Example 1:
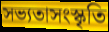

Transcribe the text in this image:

সভ্যতাসংস্কৃতি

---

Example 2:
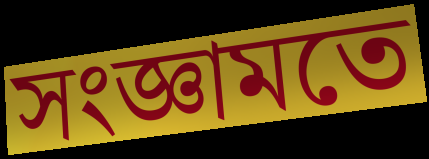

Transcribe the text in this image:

সংজ্ঞামতে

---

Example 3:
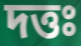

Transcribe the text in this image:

দত্তঃ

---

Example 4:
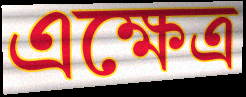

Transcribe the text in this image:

এক্ষেত্র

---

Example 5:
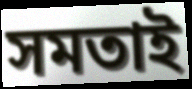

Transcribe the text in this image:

সমতাই